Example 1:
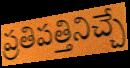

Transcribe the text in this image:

ప్రతిపత్తినిచ్చే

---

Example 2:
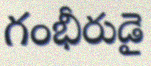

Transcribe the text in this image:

గంభీరుడై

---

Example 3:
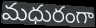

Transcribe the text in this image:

మధురంగా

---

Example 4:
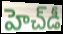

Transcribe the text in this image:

హెచ్‌డీ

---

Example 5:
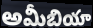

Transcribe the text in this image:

అమీబియా